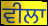
ਵੀਲਾ